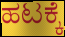
ಹಟಕ್ಕೆ